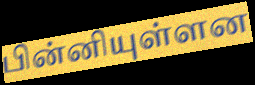
பின்னியுள்ளன